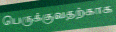
பெருக்குவதற்காக